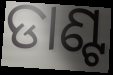
ଡାଣ୍ଟ